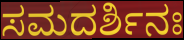
ಸಮದರ್ಶಿನಃ